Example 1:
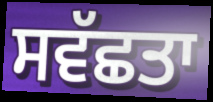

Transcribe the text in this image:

ਸਵੱਛਤਾ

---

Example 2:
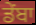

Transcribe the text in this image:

ਡੇਂਬਾ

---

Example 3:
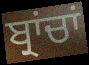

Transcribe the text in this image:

ਬ੍ਰਾਂਚਾਂ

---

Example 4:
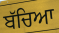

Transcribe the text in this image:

ਬੱਚਿਆ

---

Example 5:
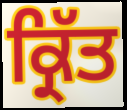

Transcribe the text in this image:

ਕ੍ਰਿੱਤ